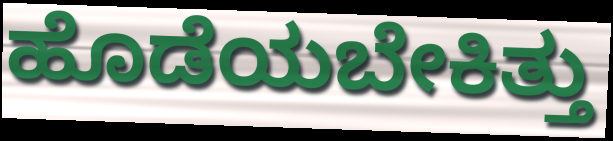
ಹೊಡೆಯಬೇಕಿತ್ತು